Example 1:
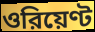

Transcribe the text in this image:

ওরিয়েণ্ট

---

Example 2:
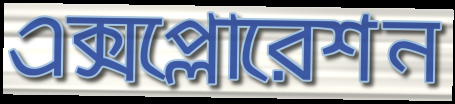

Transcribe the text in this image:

এক্সপ্লোরেশন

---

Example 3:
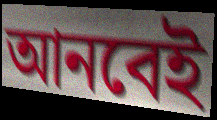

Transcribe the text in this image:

আনবেই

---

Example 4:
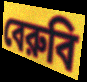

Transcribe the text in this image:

বেরুবি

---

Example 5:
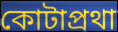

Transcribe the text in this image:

কোটাপ্রথা